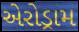
એરોડ્રામ